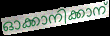
ഓക്കാനിക്കാന്